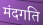
मंदगति